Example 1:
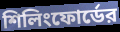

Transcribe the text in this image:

শিলিংফোর্ডের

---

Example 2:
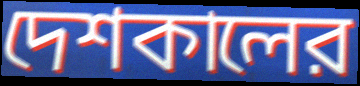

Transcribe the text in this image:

দেশকালের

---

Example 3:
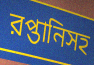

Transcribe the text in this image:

রপ্তানিসহ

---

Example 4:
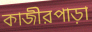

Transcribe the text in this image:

কাজীরপাড়া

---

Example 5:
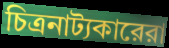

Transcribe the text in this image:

চিত্রনাট্যকারেরা